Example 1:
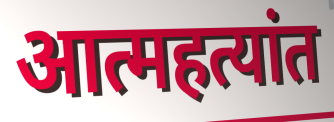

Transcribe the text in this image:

आत्महत्यांत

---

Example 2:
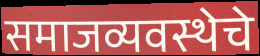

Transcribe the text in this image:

समाजव्यवस्थेचे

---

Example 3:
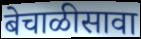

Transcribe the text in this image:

बेचाळीसावा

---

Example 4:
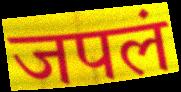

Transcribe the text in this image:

जपलं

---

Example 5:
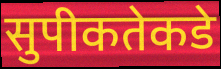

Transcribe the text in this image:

सुपीकतेकडे